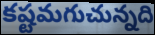
కష్టమగుచున్నది